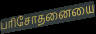
பரிசோதனையை